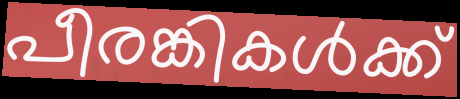
പീരങ്കികൾക്ക്